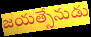
జయత్సేనుడు